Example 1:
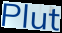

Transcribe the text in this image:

Plut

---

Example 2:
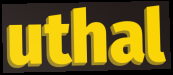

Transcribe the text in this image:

uthal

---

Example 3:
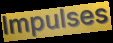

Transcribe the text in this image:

Impulses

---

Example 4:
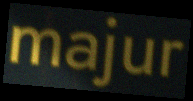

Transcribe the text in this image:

majur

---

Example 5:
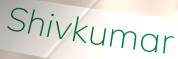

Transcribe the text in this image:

Shivkumar